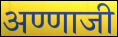
अण्णाजी